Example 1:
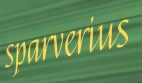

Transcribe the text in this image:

sparverius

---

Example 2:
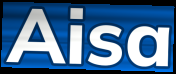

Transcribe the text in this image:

Aisa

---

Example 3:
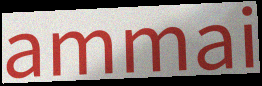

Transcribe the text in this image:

ammai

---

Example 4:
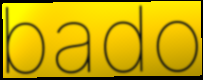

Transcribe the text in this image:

bado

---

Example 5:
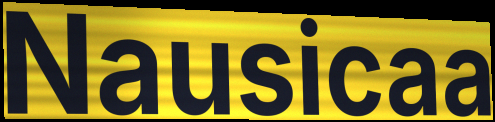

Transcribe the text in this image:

Nausicaa